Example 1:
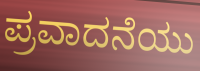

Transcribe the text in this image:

ಪ್ರವಾದನೆಯು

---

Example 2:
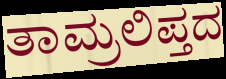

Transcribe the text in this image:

ತಾಮ್ರಲಿಪ್ತದ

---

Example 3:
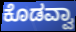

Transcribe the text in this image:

ಕೊಡವ್ವಾ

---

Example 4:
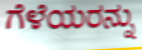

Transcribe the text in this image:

ಗೆಳೆಯರನ್ನು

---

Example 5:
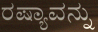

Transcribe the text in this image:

ರಷ್ಯಾವನ್ನು